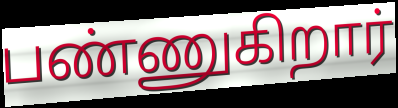
பண்ணுகிறார்